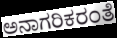
ಅನಾಗರಿಕರಂತೆ